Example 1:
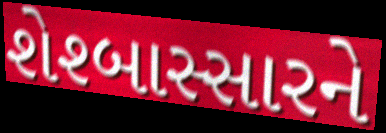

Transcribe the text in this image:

શેશ્બાસ્સારને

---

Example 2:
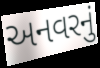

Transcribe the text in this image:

અનવરનું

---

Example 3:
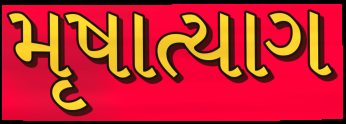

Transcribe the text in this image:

મૃષાત્યાગ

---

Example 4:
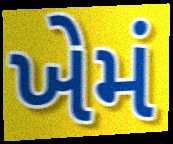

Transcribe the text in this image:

ખેમં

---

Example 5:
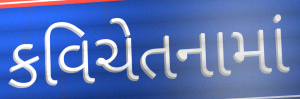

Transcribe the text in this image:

કવિચેતનામાં